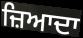
ਜ਼ਿਆਦਾ